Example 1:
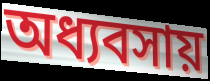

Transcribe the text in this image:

অধ্যবসায়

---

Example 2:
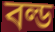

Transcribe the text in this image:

বল্ড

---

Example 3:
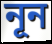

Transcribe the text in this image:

নূন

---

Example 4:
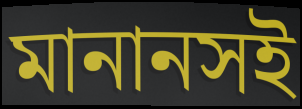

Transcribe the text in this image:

মানানসই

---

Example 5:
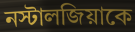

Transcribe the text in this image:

নস্টালজিয়াকে